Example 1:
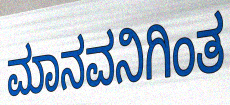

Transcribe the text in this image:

ಮಾನವನಿಗಿಂತ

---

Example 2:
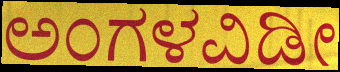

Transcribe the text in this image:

ಅಂಗಳವಿಡೀ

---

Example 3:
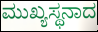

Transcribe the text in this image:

ಮುಖ್ಯಸ್ಥನಾದ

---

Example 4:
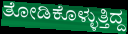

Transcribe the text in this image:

ತೋಡಿಕೊಳ್ಳುತ್ತಿದ್ದ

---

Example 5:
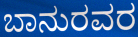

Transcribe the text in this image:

ಬಾನುರವರ